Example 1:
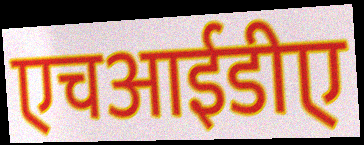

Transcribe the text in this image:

एचआईडीए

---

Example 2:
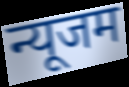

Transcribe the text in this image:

न्यूजम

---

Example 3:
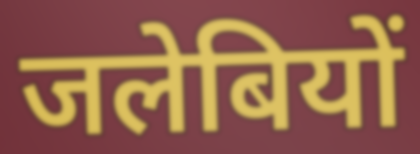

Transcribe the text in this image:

जलेबियों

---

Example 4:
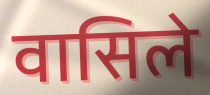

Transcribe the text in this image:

वासिले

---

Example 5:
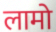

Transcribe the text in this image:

लामो